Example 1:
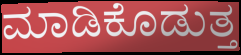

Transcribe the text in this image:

ಮಾಡಿಕೊಡುತ್ತ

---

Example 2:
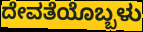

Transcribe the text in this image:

ದೇವತೆಯೊಬ್ಬಳು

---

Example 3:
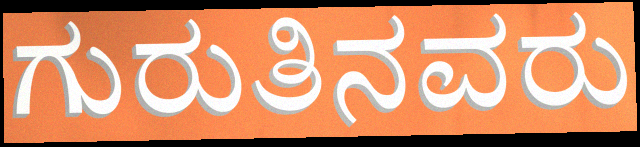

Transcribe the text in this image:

ಗುರುತಿನವರು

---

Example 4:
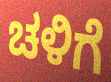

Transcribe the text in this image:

ಚಳಿಗೆ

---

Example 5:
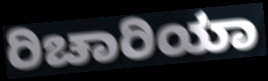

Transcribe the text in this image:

ರಿಚಾರಿಯಾ